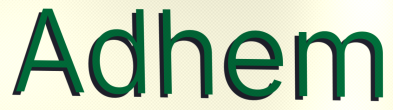
Adhem